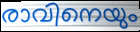
രാവിനെയും